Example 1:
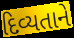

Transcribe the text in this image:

દિવ્યતાને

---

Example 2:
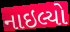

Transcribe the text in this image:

નાઇલ્યો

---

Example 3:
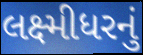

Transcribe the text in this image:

લક્ષ્મીધરનું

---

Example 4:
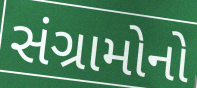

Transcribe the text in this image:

સંગ્રામોનો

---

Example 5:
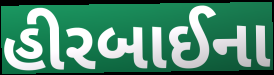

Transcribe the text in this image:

હીરબાઈના